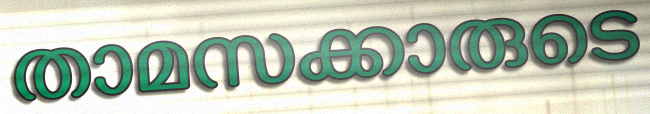
താമസക്കാരുടെ